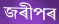
জৰীপৰ